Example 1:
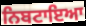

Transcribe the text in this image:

ਨਿਬਟਾਇਆ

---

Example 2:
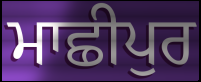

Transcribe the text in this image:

ਮਾਛੀਪੁਰ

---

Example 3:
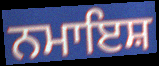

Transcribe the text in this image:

ਨਮਾਇਸ਼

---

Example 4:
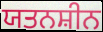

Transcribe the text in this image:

ਯਤਨਸ਼ੀਨ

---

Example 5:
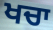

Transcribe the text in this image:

ਖਚਾ